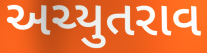
અચ્યુતરાવ